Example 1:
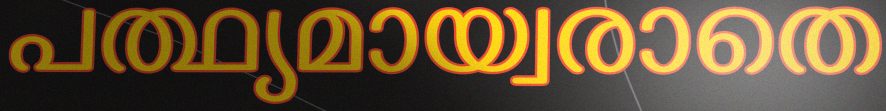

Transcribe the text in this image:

പത്ഥ്യമായ്വരാതെ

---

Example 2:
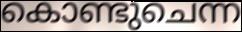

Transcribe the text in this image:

കൊണ്ടുചെന്ന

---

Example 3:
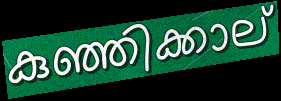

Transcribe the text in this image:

കുഞ്ഞിക്കാല്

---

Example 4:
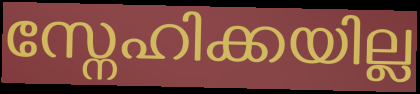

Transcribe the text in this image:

സ്നേഹിക്കയില്ല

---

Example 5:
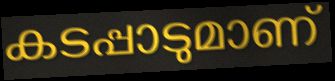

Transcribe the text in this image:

കടപ്പാടുമാണ്